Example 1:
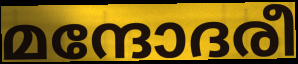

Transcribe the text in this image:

മന്ദോദരീ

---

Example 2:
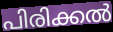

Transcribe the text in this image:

പിരിക്കൽ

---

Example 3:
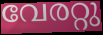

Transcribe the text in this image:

വേരറ്റു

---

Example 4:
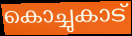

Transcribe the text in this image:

കൊച്ചുകാട്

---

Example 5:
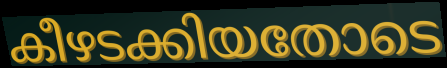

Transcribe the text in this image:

കീഴടക്കിയതോടെ